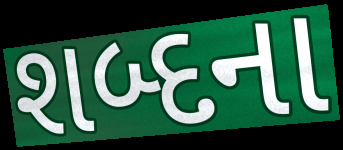
શબ્દના